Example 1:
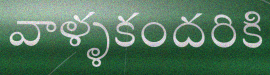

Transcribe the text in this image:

వాళ్ళకందరికి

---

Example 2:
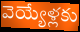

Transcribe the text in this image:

వెయ్యేళ్లకు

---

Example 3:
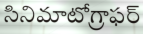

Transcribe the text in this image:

సినిమాటోగ్రాఫర్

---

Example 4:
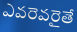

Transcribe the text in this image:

ఎవరెవరైతే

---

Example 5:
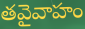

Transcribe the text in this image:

తవైవాహం